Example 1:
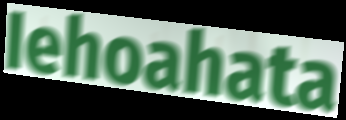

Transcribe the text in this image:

Iehoahata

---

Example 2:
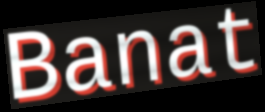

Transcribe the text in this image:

Banat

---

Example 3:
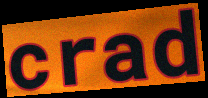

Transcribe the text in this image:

crad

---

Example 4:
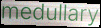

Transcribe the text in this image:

medullary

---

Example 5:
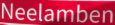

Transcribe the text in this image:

Neelamben